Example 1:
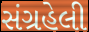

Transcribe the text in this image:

સંગ્રહેલી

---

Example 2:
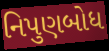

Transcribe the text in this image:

નિપુણબોધ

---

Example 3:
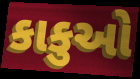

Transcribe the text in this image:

કાકુઓ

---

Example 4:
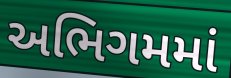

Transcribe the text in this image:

અભિગમમાં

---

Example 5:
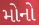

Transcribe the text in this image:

મોનો